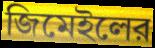
জিমেইলের